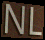
NL